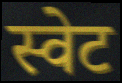
स्वेट